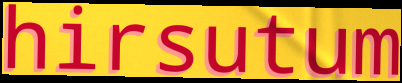
hirsutum